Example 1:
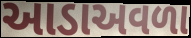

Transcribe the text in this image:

આડાઅવળા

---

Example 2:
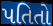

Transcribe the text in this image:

પતિતો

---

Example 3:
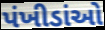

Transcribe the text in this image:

પંખીડાંઓ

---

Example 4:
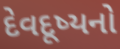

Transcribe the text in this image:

દેવદૂષ્યનો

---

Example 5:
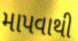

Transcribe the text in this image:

માપવાથી